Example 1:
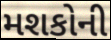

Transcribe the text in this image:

મશકોની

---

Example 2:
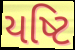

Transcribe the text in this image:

યષ્ટિ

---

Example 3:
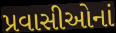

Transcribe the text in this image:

પ્રવાસીઓનાં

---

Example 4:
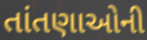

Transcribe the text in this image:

તાંતણાઓની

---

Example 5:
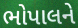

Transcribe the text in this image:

ભોપાલને